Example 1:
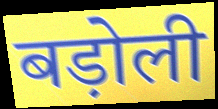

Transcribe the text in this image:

बड़ोली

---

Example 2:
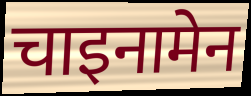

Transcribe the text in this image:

चाइनामेन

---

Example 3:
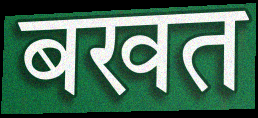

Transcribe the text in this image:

बखत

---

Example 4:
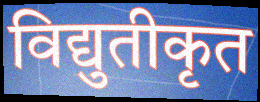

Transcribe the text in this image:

विद्युतीकृत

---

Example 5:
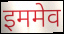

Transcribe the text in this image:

इममेव